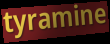
tyramine